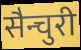
सैन्चुरी